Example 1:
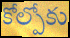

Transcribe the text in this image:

కోల్పోకు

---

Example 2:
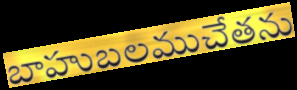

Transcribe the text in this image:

బాహుబలముచేతను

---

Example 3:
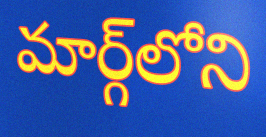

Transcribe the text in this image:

మార్గ్‌లోని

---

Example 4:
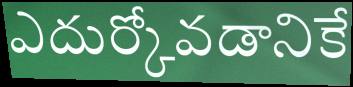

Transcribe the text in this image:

ఎదుర్కోవడానికే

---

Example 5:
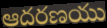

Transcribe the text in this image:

ఆదరణయు